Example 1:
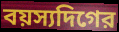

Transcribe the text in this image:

বয়স্যদিগের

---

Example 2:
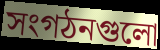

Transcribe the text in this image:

সংগঠনগুলো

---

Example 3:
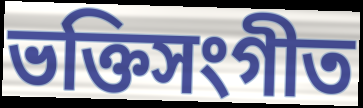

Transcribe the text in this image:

ভক্তিসংগীত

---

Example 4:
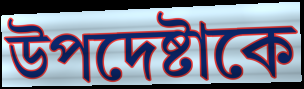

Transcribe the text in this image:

উপদেষ্টাকে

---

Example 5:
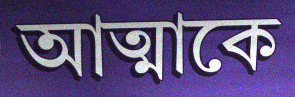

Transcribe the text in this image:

আত্মাকে